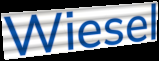
Wiesel